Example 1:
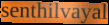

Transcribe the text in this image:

senthilvayal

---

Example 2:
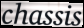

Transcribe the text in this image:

chassis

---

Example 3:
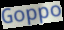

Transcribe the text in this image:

Goppo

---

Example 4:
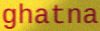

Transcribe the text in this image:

ghatna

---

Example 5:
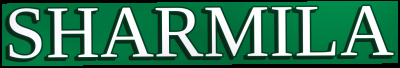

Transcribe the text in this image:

SHARMILA